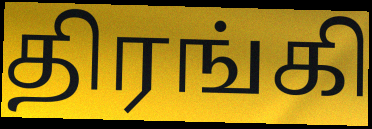
திரங்கி